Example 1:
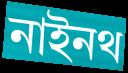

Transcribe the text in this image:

নাইনথ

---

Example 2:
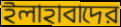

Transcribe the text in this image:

ইলাহাবাদের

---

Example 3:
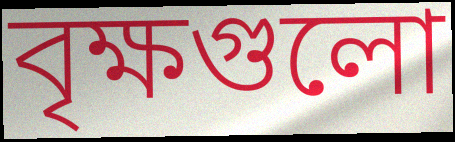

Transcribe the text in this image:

বৃক্ষগুলো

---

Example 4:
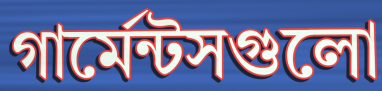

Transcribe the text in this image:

গার্মেন্টসগুলো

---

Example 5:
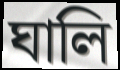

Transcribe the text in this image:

ঘালি